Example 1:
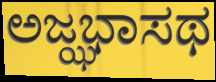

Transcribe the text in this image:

ಅಜ್ಝಭಾಸಥ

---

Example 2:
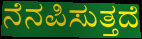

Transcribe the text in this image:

ನೆನಪಿಸುತ್ತದೆ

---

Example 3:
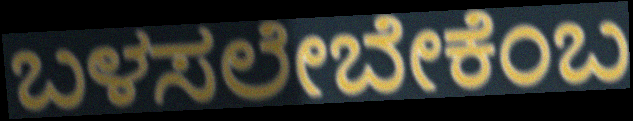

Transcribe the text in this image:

ಬಳಸಲೇಬೇಕೆಂಬ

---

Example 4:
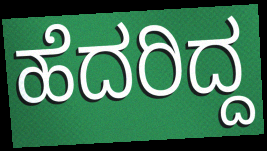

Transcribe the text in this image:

ಹೆದರಿದ್ದ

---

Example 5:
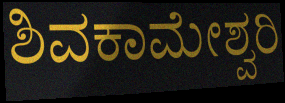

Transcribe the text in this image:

ಶಿವಕಾಮೇಶ್ವರಿ